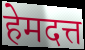
हेमदत्त